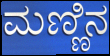
ಮಣ್ಣಿನ